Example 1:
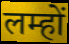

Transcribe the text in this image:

लम्हों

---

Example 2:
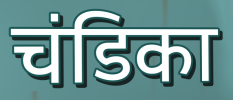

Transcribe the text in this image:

चंडिका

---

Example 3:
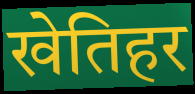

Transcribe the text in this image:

खेतिहर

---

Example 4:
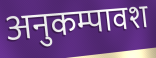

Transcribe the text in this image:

अनुकम्पावश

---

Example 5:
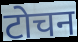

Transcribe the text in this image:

टोचन